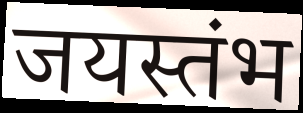
जयस्तंभ